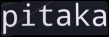
pitaka